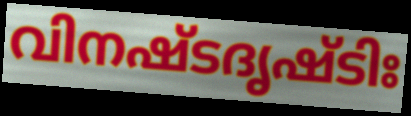
വിനഷ്ടദൃഷ്ടിഃ